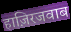
हाज़िरजवाब